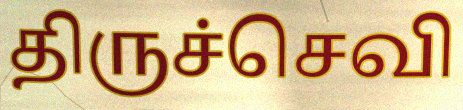
திருச்செவி